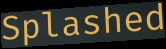
Splashed